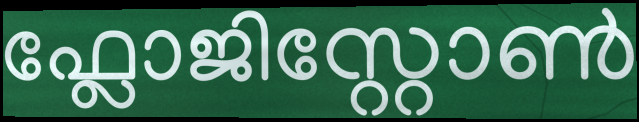
ഫ്ലോജിസ്റ്റോൺ